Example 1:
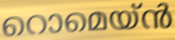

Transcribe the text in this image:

റൊമെയ്ൻ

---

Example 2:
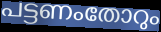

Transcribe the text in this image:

പട്ടണംതോറും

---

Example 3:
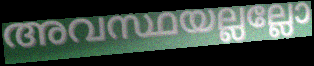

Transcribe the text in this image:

അവസ്ഥയല്ലല്ലോ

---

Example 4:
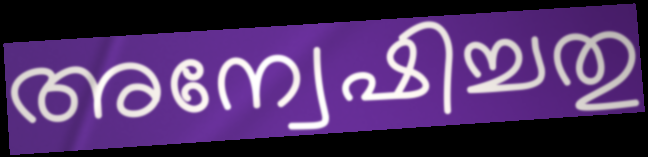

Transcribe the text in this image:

അന്വേഷിച്ചതു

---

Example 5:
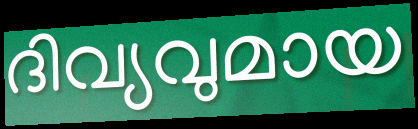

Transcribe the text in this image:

ദിവ്യവുമായ